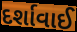
દર્શાવાઈ